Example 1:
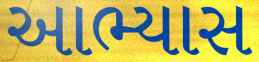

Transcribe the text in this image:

આભ્યાસ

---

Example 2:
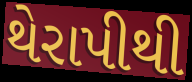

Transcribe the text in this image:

થેરાપીથી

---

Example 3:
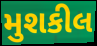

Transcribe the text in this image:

મુશકીલ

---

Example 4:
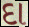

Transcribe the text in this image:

દા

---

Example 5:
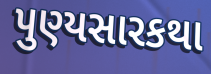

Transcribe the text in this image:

પુણ્યસારકથા